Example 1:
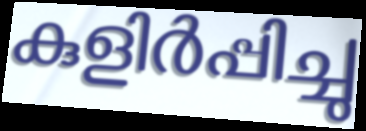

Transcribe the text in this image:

കുളിർപ്പിച്ചു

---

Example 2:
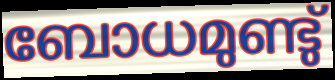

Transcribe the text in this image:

ബോധമുണ്ടു്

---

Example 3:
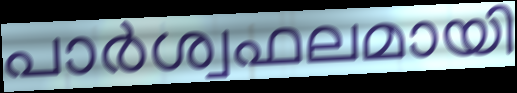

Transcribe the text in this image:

പാർശ്വഫലമായി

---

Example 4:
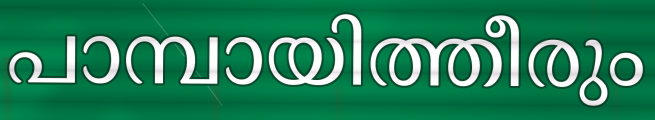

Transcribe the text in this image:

പാമ്പായിത്തീരും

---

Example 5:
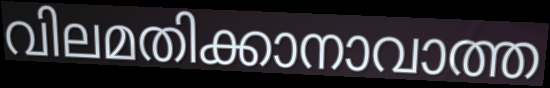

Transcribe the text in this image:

വിലമതിക്കാനാവാത്ത